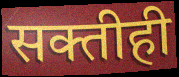
सक्तीही